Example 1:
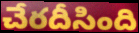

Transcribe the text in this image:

చేరదీసింది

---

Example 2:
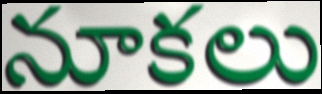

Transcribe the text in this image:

నూకలు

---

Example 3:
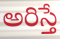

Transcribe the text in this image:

అరిస్తే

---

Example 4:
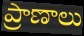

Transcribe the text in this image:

ప్రాణాలు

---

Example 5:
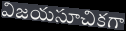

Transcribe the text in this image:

విజయసూచికగా